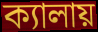
ক্যালায়